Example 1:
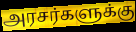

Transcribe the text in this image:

அரசர்களுக்கு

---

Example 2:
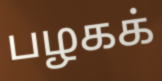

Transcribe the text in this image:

பழகக்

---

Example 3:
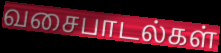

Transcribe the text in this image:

வசைபாடல்கள்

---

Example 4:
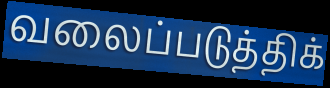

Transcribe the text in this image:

வலைப்படுத்திக்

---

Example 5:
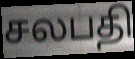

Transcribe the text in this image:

சலபதி